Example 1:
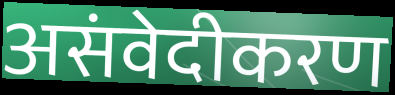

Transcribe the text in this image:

असंवेदीकरण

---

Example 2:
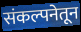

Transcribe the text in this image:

संकल्पनेतून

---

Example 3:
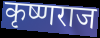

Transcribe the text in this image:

कृष्णराज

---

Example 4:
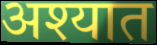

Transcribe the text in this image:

अश्यात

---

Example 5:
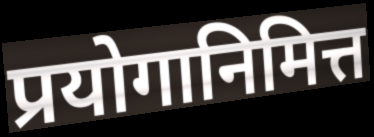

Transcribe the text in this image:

प्रयोगानिमित्त